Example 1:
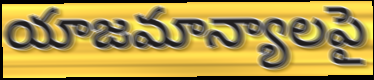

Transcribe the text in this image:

యాజమాన్యాలపై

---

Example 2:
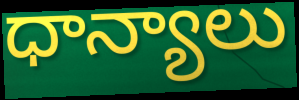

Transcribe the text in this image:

ధాన్యాలు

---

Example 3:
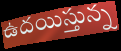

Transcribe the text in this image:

ఉదయిస్తున్న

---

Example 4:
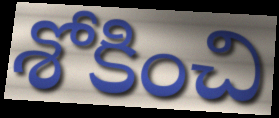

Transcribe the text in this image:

శోకించి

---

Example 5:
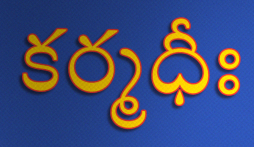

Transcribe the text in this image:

కర్మధీః